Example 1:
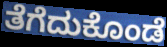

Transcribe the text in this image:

ತೆಗೆದುಕೊಂಡೆ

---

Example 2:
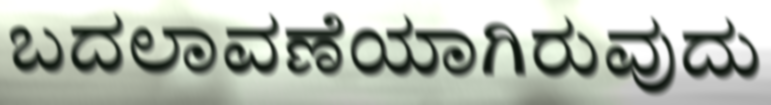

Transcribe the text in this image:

ಬದಲಾವಣೆಯಾಗಿರುವುದು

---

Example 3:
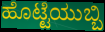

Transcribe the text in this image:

ಹೊಟ್ಟೆಯುಬ್ಬಿ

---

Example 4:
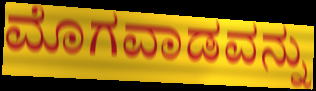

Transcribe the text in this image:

ಮೊಗವಾಡವನ್ನು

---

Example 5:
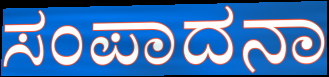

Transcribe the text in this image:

ಸಂಪಾದನಾ